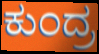
ಕುಂದ್ರ